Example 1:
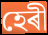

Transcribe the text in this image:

হেৰী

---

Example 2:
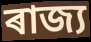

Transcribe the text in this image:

ৰাজ্য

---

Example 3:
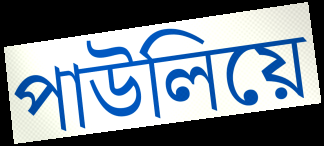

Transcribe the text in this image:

পাউলিয়ে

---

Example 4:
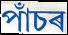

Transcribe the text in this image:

পাঁচৰ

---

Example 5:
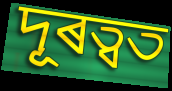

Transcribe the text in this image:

দূৰত্বত